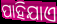
ପାହିଯାଏ